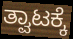
ತ್ವಾಟಕ್ಕೆ